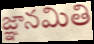
జ్ఞానమితి